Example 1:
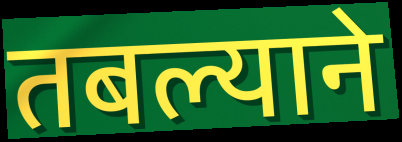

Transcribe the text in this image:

तबल्याने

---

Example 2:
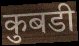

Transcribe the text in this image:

कुबडी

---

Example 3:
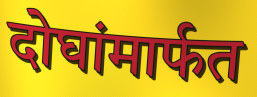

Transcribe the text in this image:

दोघांमार्फत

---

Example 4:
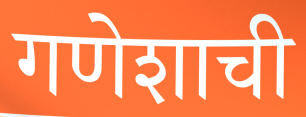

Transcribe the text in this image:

गणेशाची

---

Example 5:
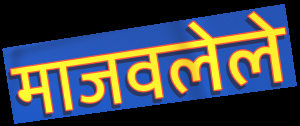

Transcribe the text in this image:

माजवलेले